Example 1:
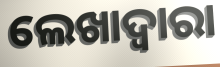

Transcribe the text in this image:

ଲେଖାଦ୍ୱାରା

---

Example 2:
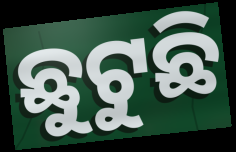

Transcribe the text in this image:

ଛୁଟୁଛି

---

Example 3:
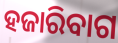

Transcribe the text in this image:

ହଜାରିବାଗ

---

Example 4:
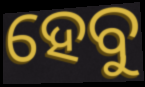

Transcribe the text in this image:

ହେବୁ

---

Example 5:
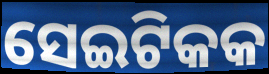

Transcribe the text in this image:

ସେଇଟିକକ